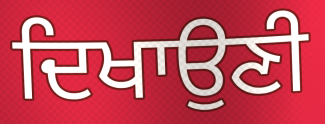
ਦਿਖਾਉਣੀ